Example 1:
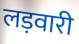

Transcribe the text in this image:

लड़वारी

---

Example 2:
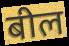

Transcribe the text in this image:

बील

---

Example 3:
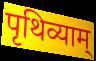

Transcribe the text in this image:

पृथिव्याम्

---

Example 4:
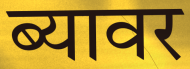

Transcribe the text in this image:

ब्यावर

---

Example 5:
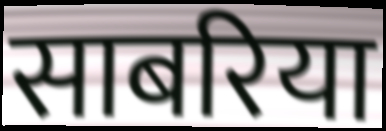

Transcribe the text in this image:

साबरिया